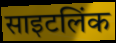
साइटलिंक